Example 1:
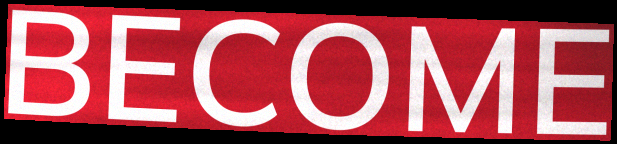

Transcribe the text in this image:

BECOME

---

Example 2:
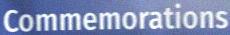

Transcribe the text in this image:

Commemorations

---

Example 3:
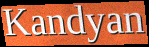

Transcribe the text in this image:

Kandyan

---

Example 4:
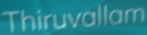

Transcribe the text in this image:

Thiruvallam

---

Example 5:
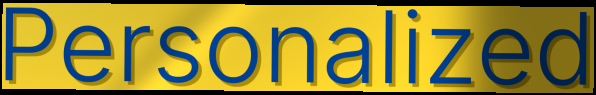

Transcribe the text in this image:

Personalized